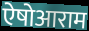
ऐषोआराम